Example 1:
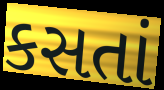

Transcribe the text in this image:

કસતાં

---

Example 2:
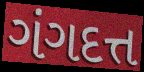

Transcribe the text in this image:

ગંગદત્ત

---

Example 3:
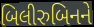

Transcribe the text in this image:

બિલીરુબિનને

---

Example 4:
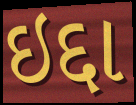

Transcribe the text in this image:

ઇદ્દા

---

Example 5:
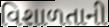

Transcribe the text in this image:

વિશાળતાની